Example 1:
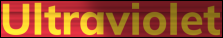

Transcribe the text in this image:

Ultraviolet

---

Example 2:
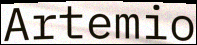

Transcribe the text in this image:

Artemio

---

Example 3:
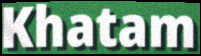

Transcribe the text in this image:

Khatam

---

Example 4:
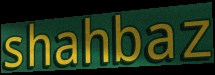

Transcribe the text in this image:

shahbaz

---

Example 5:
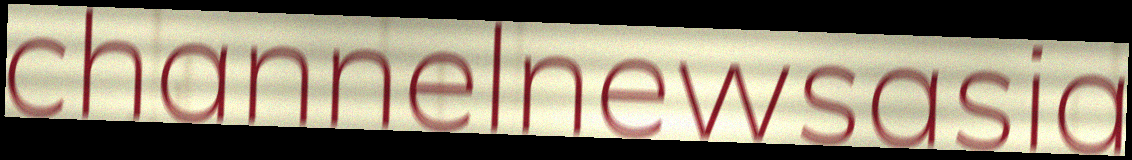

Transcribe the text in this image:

channelnewsasia